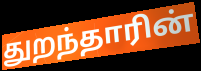
துறந்தாரின்